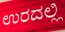
ಉರದಲ್ಲಿ